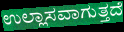
ಉಲ್ಲಾಸವಾಗುತ್ತದೆ